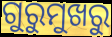
ଗୁରୁମୁଖରୁ